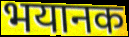
भयानक